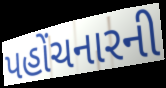
પહોંચનારની